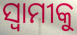
ସ୍ବାମୀକୁ